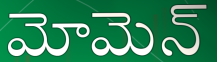
మోమెన్